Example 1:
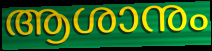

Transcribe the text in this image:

ആശാനും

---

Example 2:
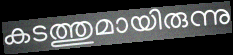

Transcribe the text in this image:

കടത്തുമായിരുന്നു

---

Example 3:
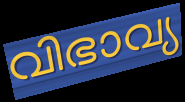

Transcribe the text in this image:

വിഭാവ്യ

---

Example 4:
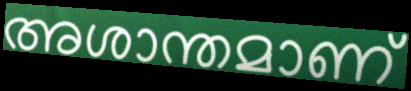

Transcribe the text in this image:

അശാന്തമാണ്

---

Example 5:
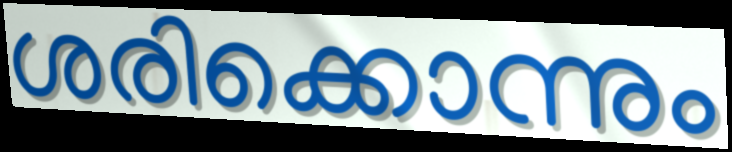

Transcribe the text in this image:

ശരിക്കൊന്നും